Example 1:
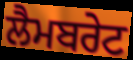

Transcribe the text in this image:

ਲੈਮਬਰੇਟ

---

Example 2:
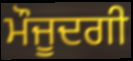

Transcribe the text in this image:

ਮੌਜੂਦਗੀ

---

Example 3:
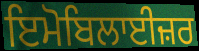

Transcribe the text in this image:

ਇਮੋਬਿਲਾਈਜ਼ਰ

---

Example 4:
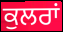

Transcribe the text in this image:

ਕੁਲਰਾਂ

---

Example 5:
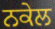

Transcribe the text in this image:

ਨਕੇਲ